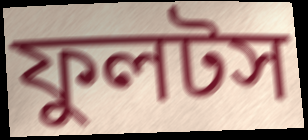
ফুলটস